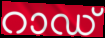
റാഡ്